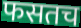
फसतच